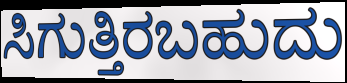
ಸಿಗುತ್ತಿರಬಹುದು